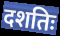
दशतिः